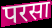
परसा